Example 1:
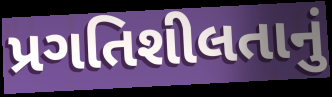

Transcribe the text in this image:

પ્રગતિશીલતાનું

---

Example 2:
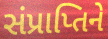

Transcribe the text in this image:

સંપ્રાપ્તિને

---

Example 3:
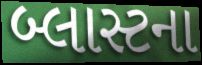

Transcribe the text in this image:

બ્લાસ્ટના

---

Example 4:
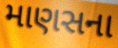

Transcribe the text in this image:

માણસના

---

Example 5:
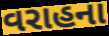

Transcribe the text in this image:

વરાહના